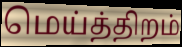
மெய்த்திறம்